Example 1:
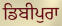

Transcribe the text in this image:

ਡਿਬੀਪੁਰਾ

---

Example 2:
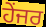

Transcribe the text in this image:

ਹੇਂਜਰ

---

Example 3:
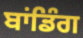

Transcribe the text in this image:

ਬਾਂਡਿੰਗ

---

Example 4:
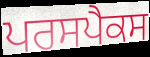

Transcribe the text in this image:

ਪਰਸਪੈਕਸ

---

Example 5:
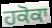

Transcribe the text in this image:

ਹਕੋਕਾ